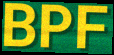
BPF